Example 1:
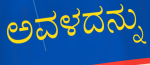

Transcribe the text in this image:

ಅವಳದನ್ನು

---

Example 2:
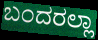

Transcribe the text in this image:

ಬಂದರಲ್ಲಾ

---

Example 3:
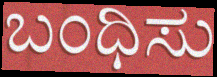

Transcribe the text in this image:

ಬಂಧಿಸು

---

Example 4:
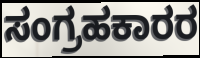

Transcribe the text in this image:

ಸಂಗ್ರಹಕಾರರ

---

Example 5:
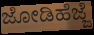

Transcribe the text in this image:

ಜೋಡಿಹೆಜ್ಜೆ